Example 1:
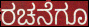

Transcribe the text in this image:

ರಚನೆಗೂ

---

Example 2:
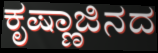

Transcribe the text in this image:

ಕೃಷ್ಣಾಜಿನದ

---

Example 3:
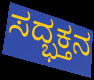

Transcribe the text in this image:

ಸದ್ಭಕ್ತನ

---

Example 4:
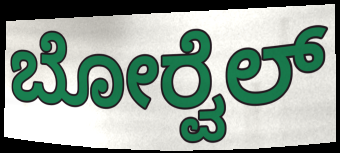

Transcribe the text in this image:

ಬೋರ್‍ವೆಲ್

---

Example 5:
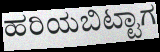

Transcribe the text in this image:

ಹರಿಯಬಿಟ್ಟಾಗ